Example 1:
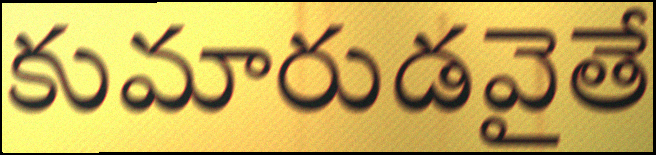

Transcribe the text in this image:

కుమారుడవైతే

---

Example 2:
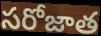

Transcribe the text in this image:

సరోజాత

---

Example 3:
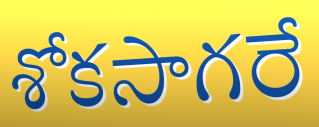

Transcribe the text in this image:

శోకసాగరే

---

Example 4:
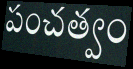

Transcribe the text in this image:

పంచత్వం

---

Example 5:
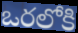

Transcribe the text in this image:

ఒరలోకి